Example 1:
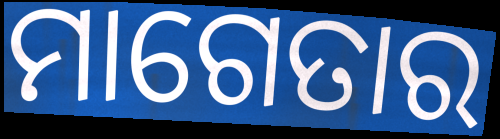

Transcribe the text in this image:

ମାଗେତାର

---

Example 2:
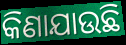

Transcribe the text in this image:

କିଣାଯାଉଛି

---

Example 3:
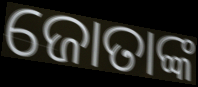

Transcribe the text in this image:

ଜୋତାଙ୍କ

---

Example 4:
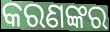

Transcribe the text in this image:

କରଣଙ୍କର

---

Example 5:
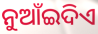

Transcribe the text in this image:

ନୁଆଁଇଦିଏ